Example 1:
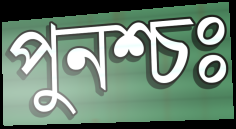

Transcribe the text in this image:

পুনশ্চঃ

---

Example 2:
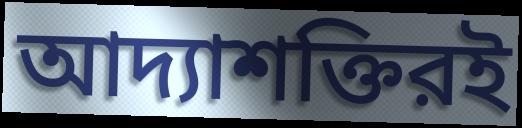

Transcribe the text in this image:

আদ্যাশক্তিরই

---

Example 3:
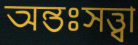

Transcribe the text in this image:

অন্তঃসত্ত্বা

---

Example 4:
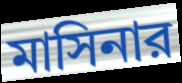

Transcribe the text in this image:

মাসিনার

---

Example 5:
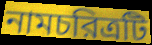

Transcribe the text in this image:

নামচরিত্রটি